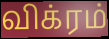
விக்ரம்